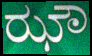
ಝೌ